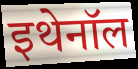
इथेनॉल